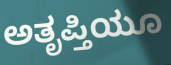
ಅತೃಪ್ತಿಯೂ